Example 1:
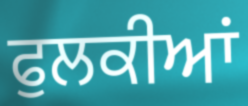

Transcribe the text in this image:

ਫੁਲਕੀਆਂ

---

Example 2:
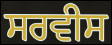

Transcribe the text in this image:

ਸਰਵੀਸ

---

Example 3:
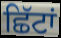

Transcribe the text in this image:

ਛਿੱਟਾਂ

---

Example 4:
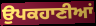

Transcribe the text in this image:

ਉਪਕਹਾਣੀਆਂ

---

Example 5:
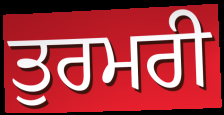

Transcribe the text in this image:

ਤੁਰਮਰੀ